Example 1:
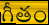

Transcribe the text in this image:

గీతం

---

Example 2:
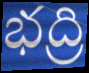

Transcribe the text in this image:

భద్రి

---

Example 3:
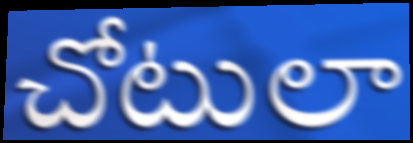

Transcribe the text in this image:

చోటులా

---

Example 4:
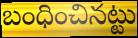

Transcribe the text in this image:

బంధించినట్టు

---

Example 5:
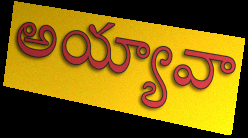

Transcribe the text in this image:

అయ్యావా